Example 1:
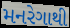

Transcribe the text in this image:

મનરેગાથી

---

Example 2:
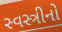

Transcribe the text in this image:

સ્વસ્ત્રીનો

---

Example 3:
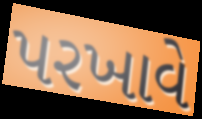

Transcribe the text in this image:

પરખાવે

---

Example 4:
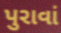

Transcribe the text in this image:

પુરાવાં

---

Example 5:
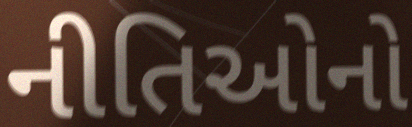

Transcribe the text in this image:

નીતિઓનો